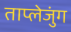
ताप्लेजुंग